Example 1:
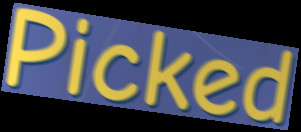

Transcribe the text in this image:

Picked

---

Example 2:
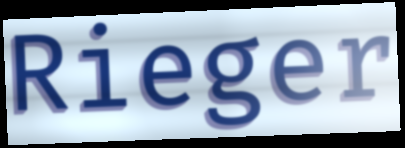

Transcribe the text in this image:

Rieger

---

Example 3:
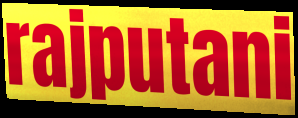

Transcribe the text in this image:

rajputani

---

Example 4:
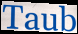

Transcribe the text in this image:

Taub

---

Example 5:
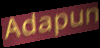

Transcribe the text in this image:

Adapun